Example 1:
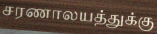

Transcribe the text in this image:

சரணாலயத்துக்கு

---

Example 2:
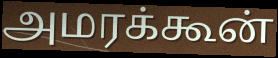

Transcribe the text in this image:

அமரக்கூன்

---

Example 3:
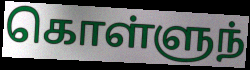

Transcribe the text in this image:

கொள்ளுந்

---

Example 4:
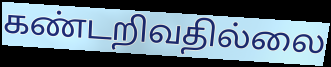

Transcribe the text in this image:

கண்டறிவதில்லை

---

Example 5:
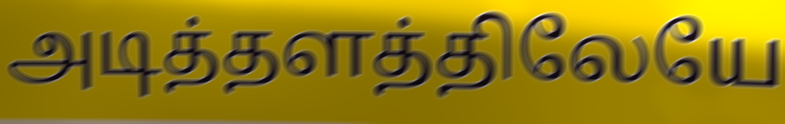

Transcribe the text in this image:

அடித்தளத்திலேயே